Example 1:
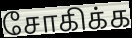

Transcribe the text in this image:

சோகிக்க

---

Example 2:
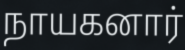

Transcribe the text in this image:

நாயகனார்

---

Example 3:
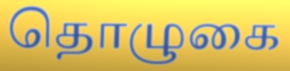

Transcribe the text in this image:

தொழுகை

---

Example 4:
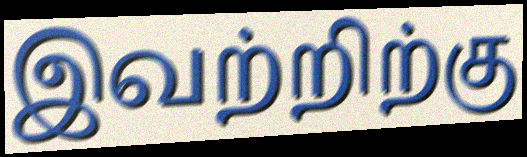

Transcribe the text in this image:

இவற்றிற்கு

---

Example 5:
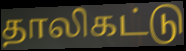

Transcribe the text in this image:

தாலிகட்டு